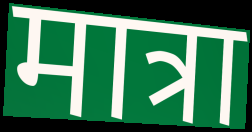
मात्रा